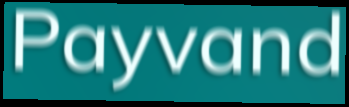
Payvand